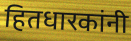
हितधारकांनी